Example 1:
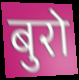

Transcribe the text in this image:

बुरो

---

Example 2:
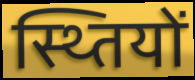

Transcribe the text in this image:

स्थ्तियों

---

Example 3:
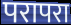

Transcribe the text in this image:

परापरा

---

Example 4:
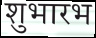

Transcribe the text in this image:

शुभारभ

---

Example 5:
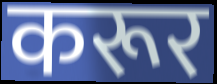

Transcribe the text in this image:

करूर